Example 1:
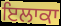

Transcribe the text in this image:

ਇਲਾਕਾ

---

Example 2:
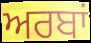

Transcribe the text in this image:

ਅਰਬਾਂ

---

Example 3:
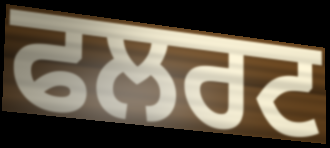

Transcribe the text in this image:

ਫਲਰਟ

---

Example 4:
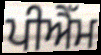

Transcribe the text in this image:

ਪੀਐੱਮ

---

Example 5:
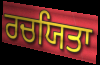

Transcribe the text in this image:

ਰਚਯਿਤਾ